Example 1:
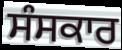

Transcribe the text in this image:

ਸੰਸਕਾਰ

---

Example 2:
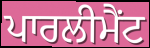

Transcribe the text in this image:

ਪਾਰਲੀਮੈਂਟ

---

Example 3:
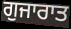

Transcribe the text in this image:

ਗੁਜਾਰਾਤ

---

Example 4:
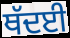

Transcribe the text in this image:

ਥੱਦਈ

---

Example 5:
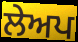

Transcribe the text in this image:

ਲੇਅਪ